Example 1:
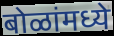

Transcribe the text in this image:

बोळांमध्ये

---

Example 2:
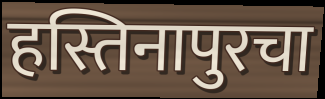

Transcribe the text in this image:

हस्तिनापुरचा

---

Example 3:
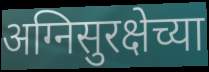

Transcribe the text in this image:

अग्निसुरक्षेच्या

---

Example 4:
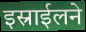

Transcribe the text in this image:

इस्राईलने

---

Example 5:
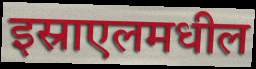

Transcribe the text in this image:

इस्राएलमधील